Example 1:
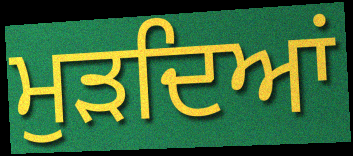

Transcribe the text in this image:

ਮੁੜਦਿਆਂ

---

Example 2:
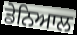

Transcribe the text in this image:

ਡੇਨਿਆਲ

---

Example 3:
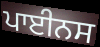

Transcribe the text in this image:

ਪਾਈਨਸ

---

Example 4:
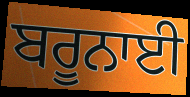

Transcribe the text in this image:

ਬਰੂਨਾਈ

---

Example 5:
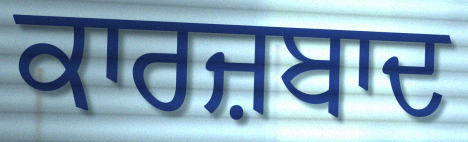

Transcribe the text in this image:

ਕਾਰਜ਼ਬਾਦ